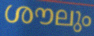
ശൗലും